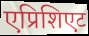
एप्रिशिएट